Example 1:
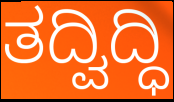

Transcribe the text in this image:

ತದ್ವಿದ್ಧಿ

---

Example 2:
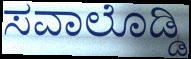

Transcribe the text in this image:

ಸವಾಲೊಡ್ಡಿ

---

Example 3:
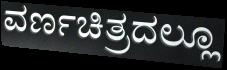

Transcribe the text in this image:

ವರ್ಣಚಿತ್ರದಲ್ಲೂ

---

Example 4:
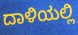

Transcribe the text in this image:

ದಾಳಿಯಲ್ಲಿ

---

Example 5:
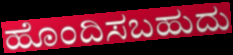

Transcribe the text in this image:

ಹೊಂದಿಸಬಹುದು